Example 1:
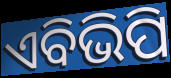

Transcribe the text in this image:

ଏବିଭିପି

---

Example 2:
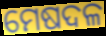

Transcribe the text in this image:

ମେଷଦଳ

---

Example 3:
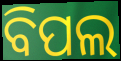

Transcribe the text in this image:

ବିପଲ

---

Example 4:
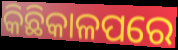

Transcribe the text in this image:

କିଛିକାଳପରେ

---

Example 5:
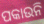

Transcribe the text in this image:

ପକାଉନି